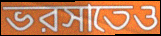
ভরসাতেও